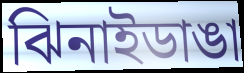
ঝিনাইডাঙা